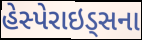
હેસ્પેરાઇડ્સના